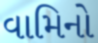
વામિનો